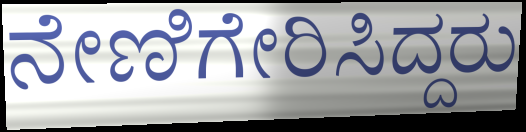
ನೇಣಿಗೇರಿಸಿದ್ದರು